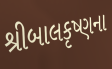
શ્રીબાલકૃષ્ણના